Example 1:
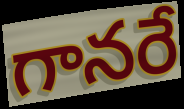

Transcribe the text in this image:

గానరే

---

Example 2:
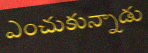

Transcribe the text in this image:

ఎంచుకున్నాడు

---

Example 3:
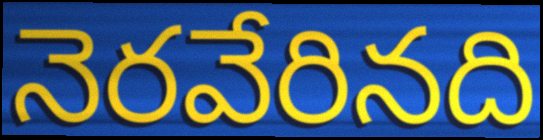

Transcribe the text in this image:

నెరవేరినది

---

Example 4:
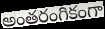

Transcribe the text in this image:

అంతరంగికంగా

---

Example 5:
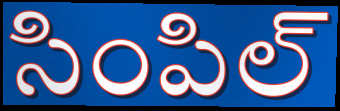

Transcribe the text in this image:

సింపిల్